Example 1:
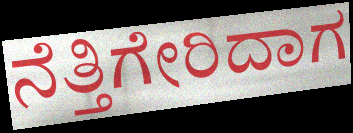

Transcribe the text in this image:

ನೆತ್ತಿಗೇರಿದಾಗ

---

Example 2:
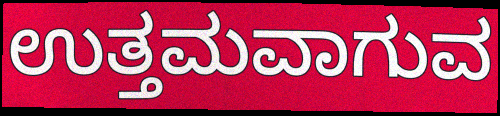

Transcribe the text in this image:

ಉತ್ತಮವಾಗುವ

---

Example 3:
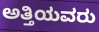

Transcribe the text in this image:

ಅತ್ತಿಯವರು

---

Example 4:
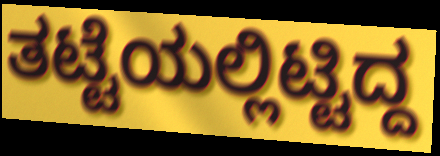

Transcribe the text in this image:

ತಟ್ಟೆಯಲ್ಲಿಟ್ಟಿದ್ದ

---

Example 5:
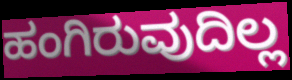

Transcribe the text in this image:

ಹಂಗಿರುವುದಿಲ್ಲ